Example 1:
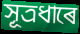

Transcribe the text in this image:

সূত্ৰধাৰে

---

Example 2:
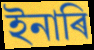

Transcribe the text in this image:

ইনাৰি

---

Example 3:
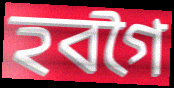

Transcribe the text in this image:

হবগৈ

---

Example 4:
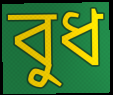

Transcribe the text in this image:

বুধ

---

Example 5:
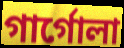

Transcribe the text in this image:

গাৰ্গোলা